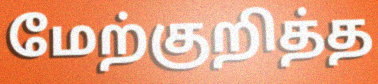
மேற்குறித்த